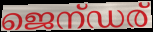
ജെന്ഡര്